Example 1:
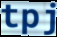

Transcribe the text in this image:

tpj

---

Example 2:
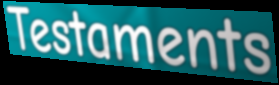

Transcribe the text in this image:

Testaments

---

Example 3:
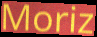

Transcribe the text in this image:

Moriz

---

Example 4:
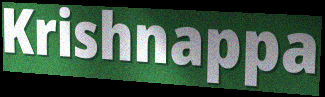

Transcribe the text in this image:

Krishnappa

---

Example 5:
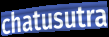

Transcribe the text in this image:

chatusutra